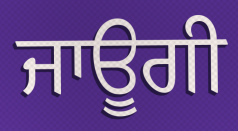
ਜਾਊਗੀ